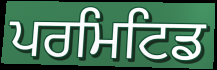
ਪਰਮਿਟਿਡ